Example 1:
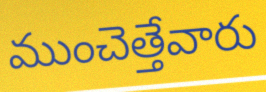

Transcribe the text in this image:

ముంచెత్తేవారు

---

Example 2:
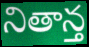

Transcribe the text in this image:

నితాన్త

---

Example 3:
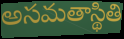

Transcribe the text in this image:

అసమతాస్థితి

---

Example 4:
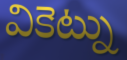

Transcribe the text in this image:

వికెట్ను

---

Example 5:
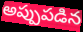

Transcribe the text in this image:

అప్పుపడిన